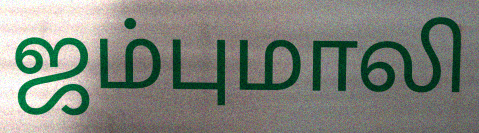
ஜம்புமாலி